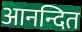
आनन्दित